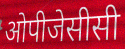
ओपीजेसीसी